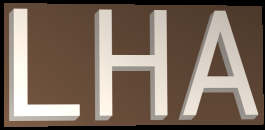
LHA